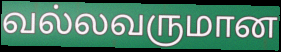
வல்லவருமான